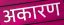
अकारण